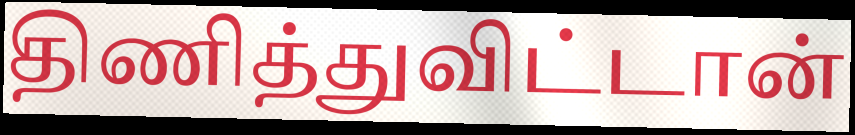
திணித்துவிட்டான்